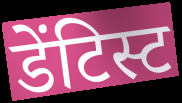
डेंटिस्ट